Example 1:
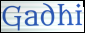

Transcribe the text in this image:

Gadhi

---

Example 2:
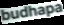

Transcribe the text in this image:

budhapa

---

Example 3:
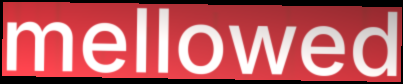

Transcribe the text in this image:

mellowed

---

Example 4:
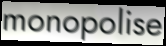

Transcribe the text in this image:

monopolise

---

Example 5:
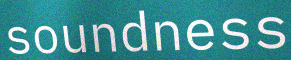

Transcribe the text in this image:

soundness